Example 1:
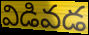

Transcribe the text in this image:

విడివడ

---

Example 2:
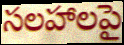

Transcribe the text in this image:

సలహాలపై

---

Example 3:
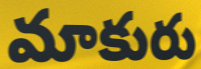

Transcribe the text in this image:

మాకురు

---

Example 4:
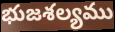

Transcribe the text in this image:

భుజశల్యము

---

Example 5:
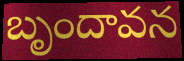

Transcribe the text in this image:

బృందావన